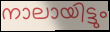
നാലായിട്ടും